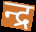
न्द्र